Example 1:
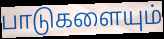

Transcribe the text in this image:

பாடுகளையும்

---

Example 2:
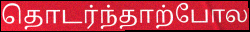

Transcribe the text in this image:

தொடர்ந்தாற்போல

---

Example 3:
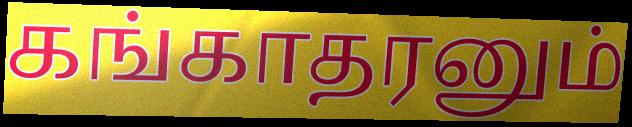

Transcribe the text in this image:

கங்காதரனும்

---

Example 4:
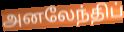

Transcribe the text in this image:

அனலேந்திப்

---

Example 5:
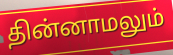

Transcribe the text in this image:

தின்னாமலும்